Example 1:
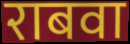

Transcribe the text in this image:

राबवा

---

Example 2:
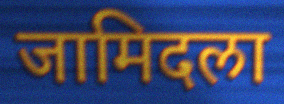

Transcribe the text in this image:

जामिदला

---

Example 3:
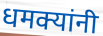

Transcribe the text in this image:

धमक्यांनी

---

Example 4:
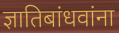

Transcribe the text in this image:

ज्ञातिबांधवांना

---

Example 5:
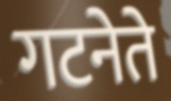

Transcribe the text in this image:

गटनेते